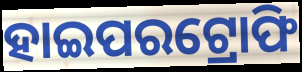
ହାଇପରଟ୍ରୋଫି